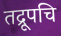
तद्रूपचि